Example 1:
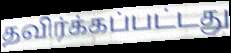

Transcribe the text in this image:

தவிர்க்கப்பட்டது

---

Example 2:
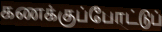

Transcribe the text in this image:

கணக்குப்போட்டுப்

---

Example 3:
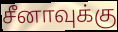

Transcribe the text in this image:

சீனாவுக்கு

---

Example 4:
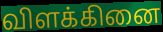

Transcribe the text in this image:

விளக்கினை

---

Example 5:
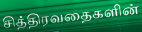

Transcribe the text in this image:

சித்திரவதைகளின்